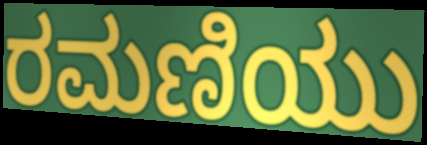
ರಮಣಿಯು